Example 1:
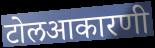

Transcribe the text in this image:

टोलआकारणी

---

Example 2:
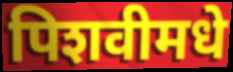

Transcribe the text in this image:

पिशवीमधे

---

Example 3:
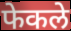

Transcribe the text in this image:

फेकले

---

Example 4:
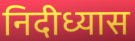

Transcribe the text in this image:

निदीध्यास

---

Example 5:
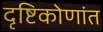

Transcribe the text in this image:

दृष्टिकोणांत